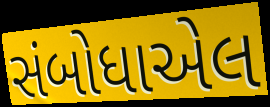
સંબોધાએલ